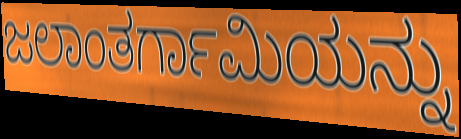
ಜಲಾಂತರ್ಗಾಮಿಯನ್ನು